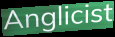
Anglicist